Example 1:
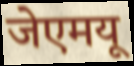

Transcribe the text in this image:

जेएमयू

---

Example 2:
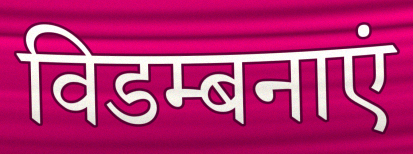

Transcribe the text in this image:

विडम्बनाएं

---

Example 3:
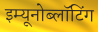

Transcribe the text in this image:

इम्यूनोब्लॉटिंग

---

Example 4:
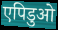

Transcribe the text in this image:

एपिडुओ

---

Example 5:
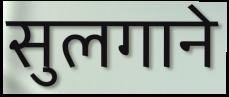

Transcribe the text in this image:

सुलगाने